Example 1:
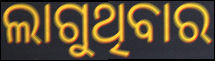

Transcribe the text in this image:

ଲାଗୁଥିବାର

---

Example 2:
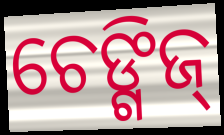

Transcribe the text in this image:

ଚେଙ୍ଗିଜ୍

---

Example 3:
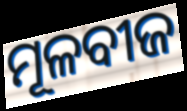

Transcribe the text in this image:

ମୂଳବୀଜ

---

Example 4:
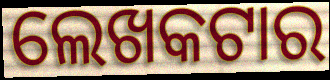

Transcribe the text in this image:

ଲେଖକଟାର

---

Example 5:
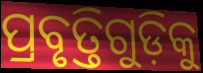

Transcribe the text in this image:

ପ୍ରବୃତ୍ତିଗୁଡ଼ିକୁ